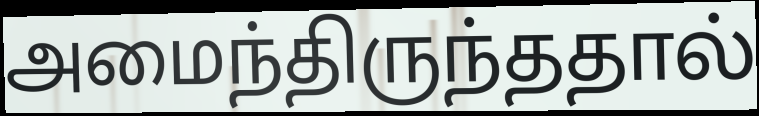
அமைந்திருந்ததால்